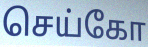
செய்கோ